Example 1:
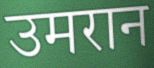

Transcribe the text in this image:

उमरान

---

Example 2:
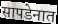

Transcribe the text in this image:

सापडेनात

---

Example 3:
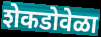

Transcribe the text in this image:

शेकडोवेळा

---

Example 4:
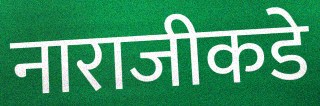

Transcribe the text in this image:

नाराजीकडे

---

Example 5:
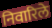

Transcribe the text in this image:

निवारिले